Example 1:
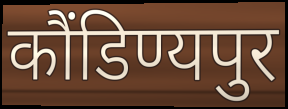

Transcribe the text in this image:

कौंडिण्यपुर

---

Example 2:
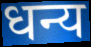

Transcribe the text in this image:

धन्य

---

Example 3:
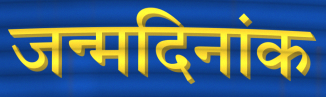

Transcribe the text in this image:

जन्मदिनांक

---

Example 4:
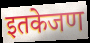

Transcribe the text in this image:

इतकेजण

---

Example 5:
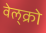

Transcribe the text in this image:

वेल्क्रो